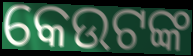
କେଉଟଙ୍କ